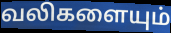
வலிகளையும்